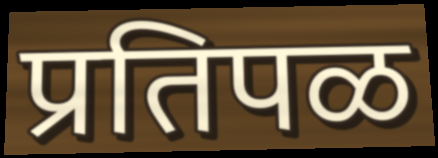
प्रतिपळ